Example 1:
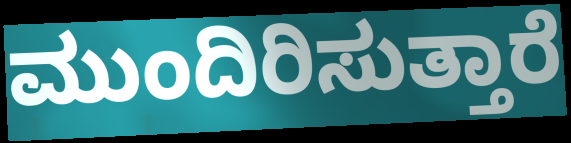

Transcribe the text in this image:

ಮುಂದಿರಿಸುತ್ತಾರೆ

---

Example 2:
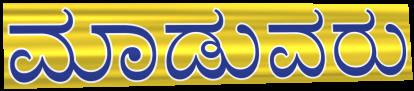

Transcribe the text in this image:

ಮಾಡುವರು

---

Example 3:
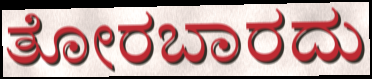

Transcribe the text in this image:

ತೋರಬಾರದು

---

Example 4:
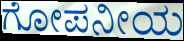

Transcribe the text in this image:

ಗೋಪನೀಯ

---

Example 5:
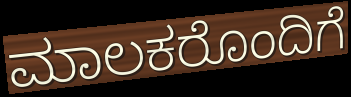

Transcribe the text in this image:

ಮಾಲಕರೊಂದಿಗೆ